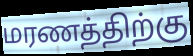
மரணத்திற்கு